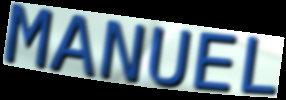
MANUEL